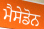
ਮੈਸੇਡੋਨ